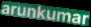
arunkumar